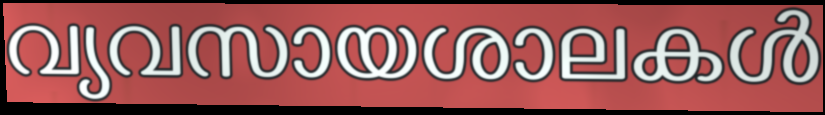
വ്യവസായശാലകൾ